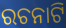
ରଚନାଟି